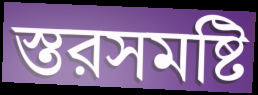
স্তরসমষ্টি